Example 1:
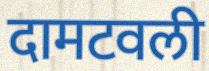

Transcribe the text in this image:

दामटवली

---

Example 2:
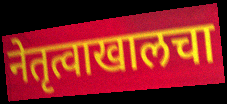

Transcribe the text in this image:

नेतृत्वाखालचा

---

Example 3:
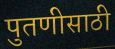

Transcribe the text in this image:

पुतणीसाठी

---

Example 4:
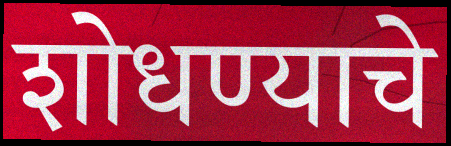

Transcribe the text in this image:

शोधण्याचे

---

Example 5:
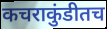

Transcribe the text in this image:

कचराकुंडीतच